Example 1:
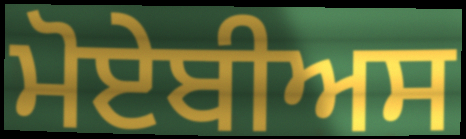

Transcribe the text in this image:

ਮੋਏਬੀਅਸ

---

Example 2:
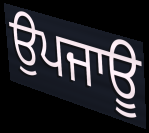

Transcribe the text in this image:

ਉਪਜਾਊ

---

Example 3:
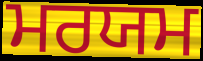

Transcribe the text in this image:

ਮਰਯਮ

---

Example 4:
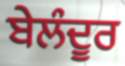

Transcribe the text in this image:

ਬੇਲੰਦੂਰ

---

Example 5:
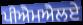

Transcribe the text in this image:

ਪੀਐਮਐਲਏ